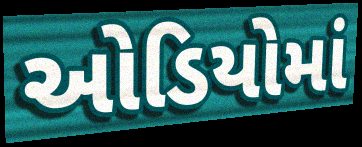
ઓડિયોમાં